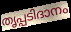
തൃപ്പടിദാനം